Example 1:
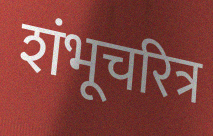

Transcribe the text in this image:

शंभूचरित्र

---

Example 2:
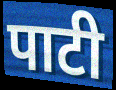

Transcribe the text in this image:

पाटी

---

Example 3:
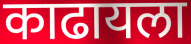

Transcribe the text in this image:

काढायला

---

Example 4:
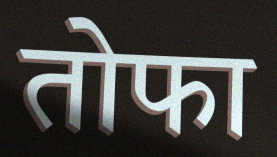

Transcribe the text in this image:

तोफा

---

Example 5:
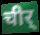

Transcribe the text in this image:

चीर्